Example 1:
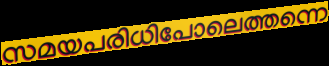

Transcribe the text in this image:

സമയപരിധിപോലെത്തന്നെ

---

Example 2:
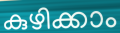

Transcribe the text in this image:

കുഴിക്കാം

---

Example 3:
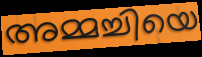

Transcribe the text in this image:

അമ്മച്ചിയെ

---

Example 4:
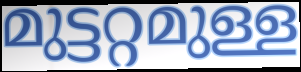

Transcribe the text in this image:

മുട്ടറ്റമുള്ള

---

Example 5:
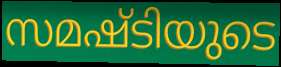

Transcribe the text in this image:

സമഷ്ടിയുടെ